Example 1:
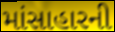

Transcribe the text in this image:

માંસાહારની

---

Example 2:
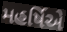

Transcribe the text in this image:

મહર્ષિએ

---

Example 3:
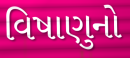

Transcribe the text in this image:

વિષાણુનો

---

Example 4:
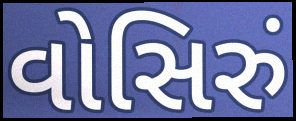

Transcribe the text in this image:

વોસિરું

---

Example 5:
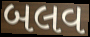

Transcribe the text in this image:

બલવ